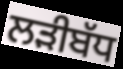
ਲੜੀਬੱਧ